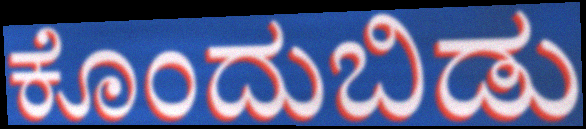
ಕೊಂದುಬಿಡು